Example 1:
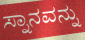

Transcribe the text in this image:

ಸ್ನಾನವನ್ನು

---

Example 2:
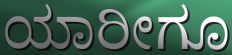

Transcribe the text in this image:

ಯಾರೀಗೂ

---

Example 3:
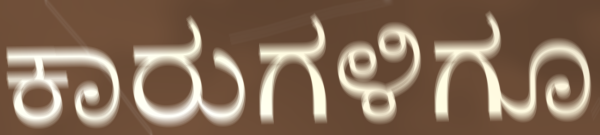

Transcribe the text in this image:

ಕಾರುಗಳಿಗೂ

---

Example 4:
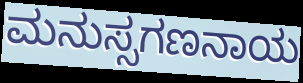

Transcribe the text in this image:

ಮನುಸ್ಸಗಣನಾಯ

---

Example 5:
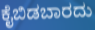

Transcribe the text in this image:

ಕೈಬಿಡಬಾರದು